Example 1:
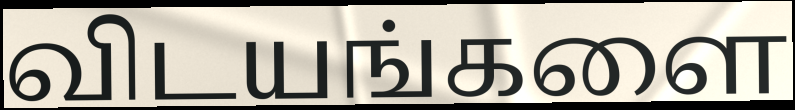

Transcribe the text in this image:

விடயங்களை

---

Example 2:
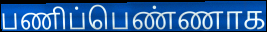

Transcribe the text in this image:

பணிப்பெண்ணாக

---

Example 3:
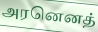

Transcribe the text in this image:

அரனெனத்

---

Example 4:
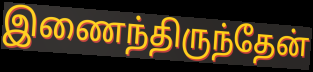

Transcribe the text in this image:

இணைந்திருந்தேன்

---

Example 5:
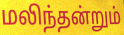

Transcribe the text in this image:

மலிந்தன்றும்